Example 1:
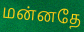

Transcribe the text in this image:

மன்னதே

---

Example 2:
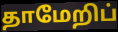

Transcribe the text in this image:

தாமேறிப்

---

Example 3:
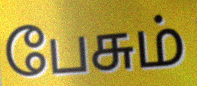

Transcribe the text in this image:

பேசும்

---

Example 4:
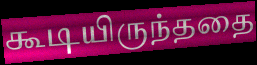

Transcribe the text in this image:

கூடியிருந்ததை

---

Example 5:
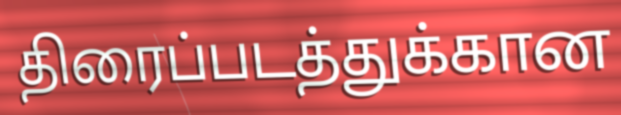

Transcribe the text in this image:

திரைப்படத்துக்கான